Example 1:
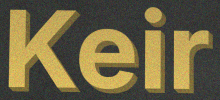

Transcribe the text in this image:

Keir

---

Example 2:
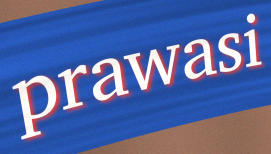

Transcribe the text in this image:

prawasi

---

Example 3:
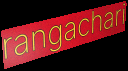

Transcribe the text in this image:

rangachari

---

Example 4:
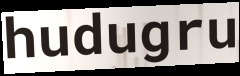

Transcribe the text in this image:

hudugru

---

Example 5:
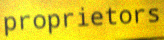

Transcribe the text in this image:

proprietors